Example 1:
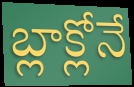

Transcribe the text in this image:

బ్లాక్లోనే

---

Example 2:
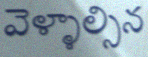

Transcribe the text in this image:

వెళ్ళాల్సిన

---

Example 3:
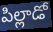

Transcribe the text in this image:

పిల్లాడో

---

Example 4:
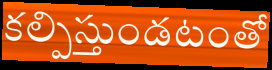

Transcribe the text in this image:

కల్పిస్తుండటంతో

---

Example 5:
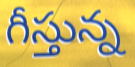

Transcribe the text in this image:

గీస్తున్న